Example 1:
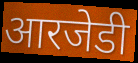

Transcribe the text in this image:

आरजेडी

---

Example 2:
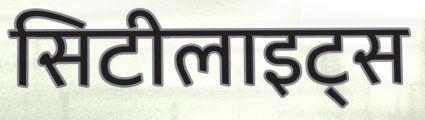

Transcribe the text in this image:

सिटीलाइट्स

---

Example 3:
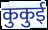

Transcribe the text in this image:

कुकुई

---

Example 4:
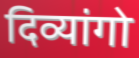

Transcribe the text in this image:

दिव्यांगो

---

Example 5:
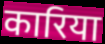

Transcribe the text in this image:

कारिया